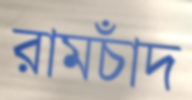
রামচাঁদ